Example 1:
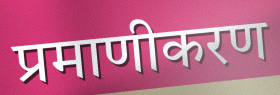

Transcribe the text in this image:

प्रमाणीकरण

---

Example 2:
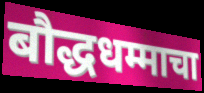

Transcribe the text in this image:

बौद्धधम्माचा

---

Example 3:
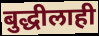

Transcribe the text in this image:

बुद्धीलाही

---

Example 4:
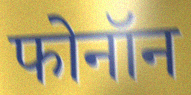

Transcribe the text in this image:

फोनॉन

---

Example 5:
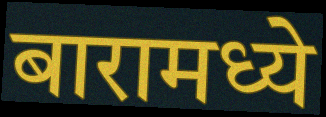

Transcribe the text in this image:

बारामध्ये